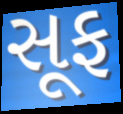
સૂફ